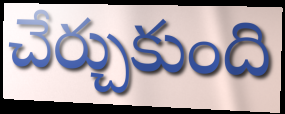
చేర్చుకుంది